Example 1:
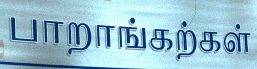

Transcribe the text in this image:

பாறாங்கற்கள்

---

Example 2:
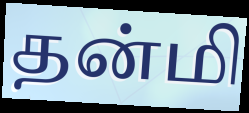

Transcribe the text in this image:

தன்மி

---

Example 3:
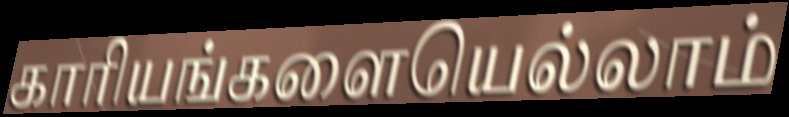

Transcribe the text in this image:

காரியங்களையெல்லாம்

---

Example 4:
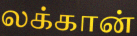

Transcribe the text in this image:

லக்கான்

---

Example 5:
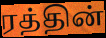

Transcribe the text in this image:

ரத்தின்